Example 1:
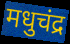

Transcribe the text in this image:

मधुचंद्र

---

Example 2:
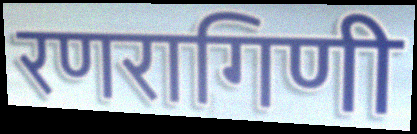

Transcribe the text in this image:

रणरागिणी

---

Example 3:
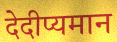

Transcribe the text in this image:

देदीप्यमान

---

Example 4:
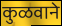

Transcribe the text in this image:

कुळवाने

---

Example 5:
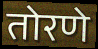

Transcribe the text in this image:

तोरणे